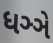
ધઞ્ઞે